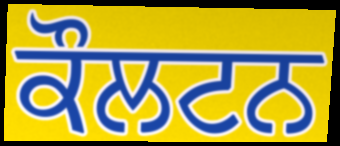
ਕੌਲਟਨ